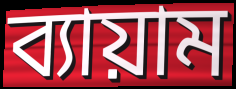
ব্যায়াম